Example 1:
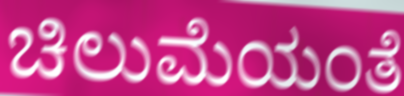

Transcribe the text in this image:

ಚಿಲುಮೆಯಂತೆ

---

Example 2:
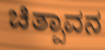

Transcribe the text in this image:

ಚಿತ್ಪಾವನ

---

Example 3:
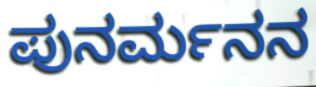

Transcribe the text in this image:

ಪುನರ್ಮನನ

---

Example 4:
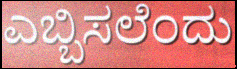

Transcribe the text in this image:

ಎಬ್ಬಿಸಲೆಂದು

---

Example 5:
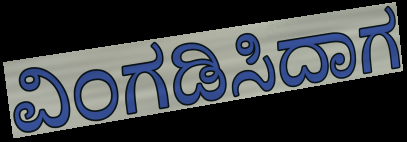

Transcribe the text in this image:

ವಿಂಗಡಿಸಿದಾಗ